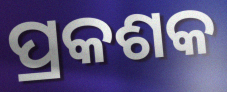
ପ୍ରକଶକ